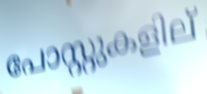
പോസ്റ്റുകളില്